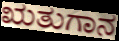
ಋತುಗಾನ